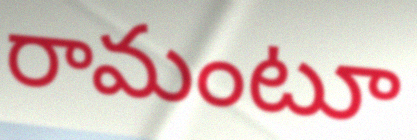
రామంటూ